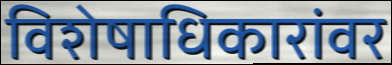
विशेषाधिकारांवर